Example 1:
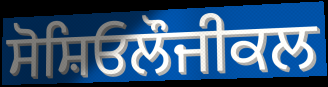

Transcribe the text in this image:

ਸੋਸ਼ਿਓਲੌਜੀਕਲ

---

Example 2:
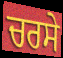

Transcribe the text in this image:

ਚਰਸੇ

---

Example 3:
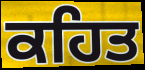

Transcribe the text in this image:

ਕਹਿਤ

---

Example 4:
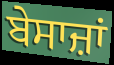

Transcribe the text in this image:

ਬੇਸਾਜ਼ਾਂ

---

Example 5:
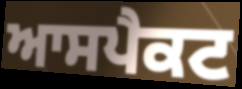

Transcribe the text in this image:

ਆਸਪੈਕਟ